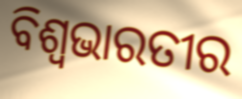
ବିଶ୍ୱଭାରତୀର